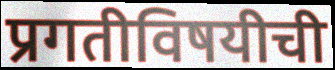
प्रगतीविषयीची